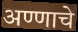
अण्णाचे